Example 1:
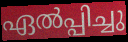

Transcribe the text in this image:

ഏൽപ്പിച്ചു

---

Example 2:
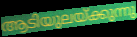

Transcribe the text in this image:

ആടിയുലയ്ക്കുന്നു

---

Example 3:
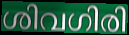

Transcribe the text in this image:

ശിവഗിരി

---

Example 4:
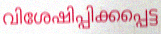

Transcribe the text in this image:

വിശേഷിപ്പിക്കപ്പെട്ട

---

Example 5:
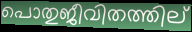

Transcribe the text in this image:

പൊതുജീവിതത്തില്